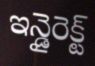
ఇన్డైరెక్ట్